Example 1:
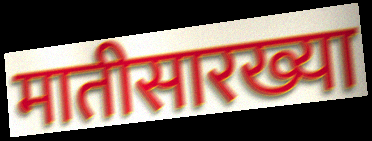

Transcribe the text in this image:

मातीसारख्या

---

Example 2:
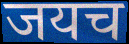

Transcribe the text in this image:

जयच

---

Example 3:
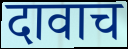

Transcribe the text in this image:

दावाच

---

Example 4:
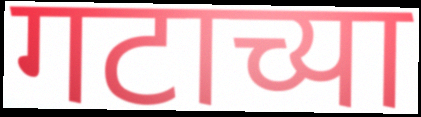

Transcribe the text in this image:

गटाच्या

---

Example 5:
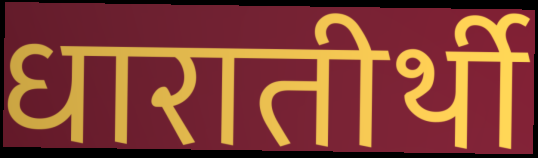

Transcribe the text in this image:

धारातीर्थी